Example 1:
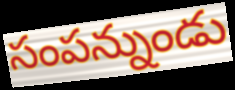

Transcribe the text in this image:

సంపన్నుండు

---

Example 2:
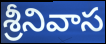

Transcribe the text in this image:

శ్రీనివాస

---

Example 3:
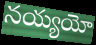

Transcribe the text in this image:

నయ్యయో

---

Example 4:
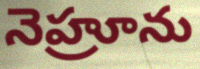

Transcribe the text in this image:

నెహ్రూను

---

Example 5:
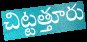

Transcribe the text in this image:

చిట్టత్తూరు